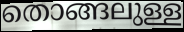
തൊങ്ങലുള്ള